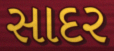
સાદર